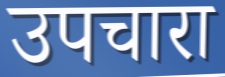
उपचारा